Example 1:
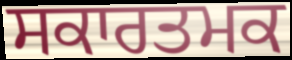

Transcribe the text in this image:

ਸਕਾਰਤਮਕ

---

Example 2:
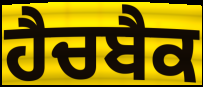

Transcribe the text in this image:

ਹੈਚਬੈਕ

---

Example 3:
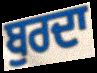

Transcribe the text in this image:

ਬੁਰਦਾ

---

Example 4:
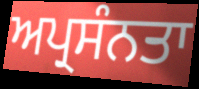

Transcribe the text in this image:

ਅਪ੍ਰਸੰਨਤਾ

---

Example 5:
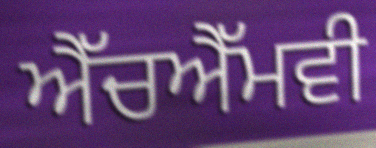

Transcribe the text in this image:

ਐੱਚਐੱਮਵੀ